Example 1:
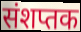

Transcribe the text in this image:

संशप्तक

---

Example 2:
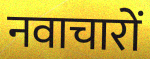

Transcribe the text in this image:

नवाचारों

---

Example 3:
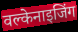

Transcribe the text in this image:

वल्केनाइजिंग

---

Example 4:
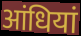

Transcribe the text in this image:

आंधियां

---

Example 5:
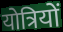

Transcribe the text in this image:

योत्रियों